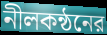
নীলকন্ঠনের